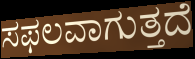
ಸಫಲವಾಗುತ್ತದೆ